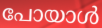
പോയാൾ